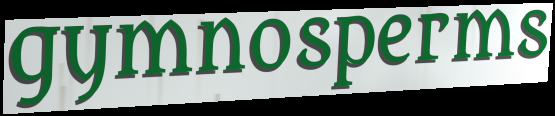
gymnosperms